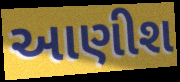
આણીશ